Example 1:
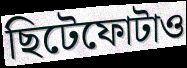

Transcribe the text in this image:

ছিটেফোটাও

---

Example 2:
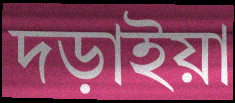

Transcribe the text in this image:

দড়াইয়া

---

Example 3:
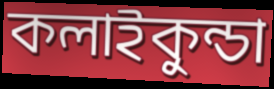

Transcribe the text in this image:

কলাইকুন্ডা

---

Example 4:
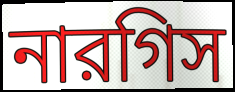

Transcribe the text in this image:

নারগিস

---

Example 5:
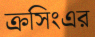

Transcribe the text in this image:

ক্রসিংএর